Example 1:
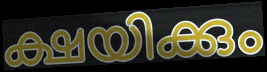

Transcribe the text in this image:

ക്ഷയിക്കും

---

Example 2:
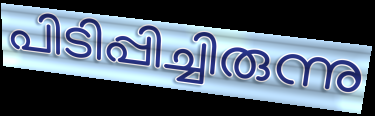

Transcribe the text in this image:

പിടിപ്പിച്ചിരുന്നു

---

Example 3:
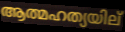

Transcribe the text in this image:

ആത്മഹത്യയില്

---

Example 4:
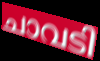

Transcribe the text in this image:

ചാവടി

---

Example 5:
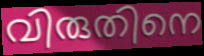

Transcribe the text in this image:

വിരുതിനെ